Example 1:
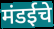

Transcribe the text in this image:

मंडईचे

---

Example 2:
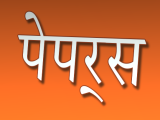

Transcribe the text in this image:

पेपर्स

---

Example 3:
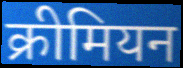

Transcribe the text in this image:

क्रीमियन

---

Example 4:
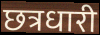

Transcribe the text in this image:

छत्रधारी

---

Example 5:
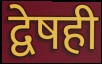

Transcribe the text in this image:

द्वेषही